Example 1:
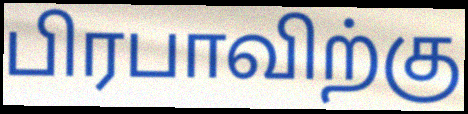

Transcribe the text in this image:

பிரபாவிற்கு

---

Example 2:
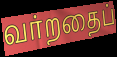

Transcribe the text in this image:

வர்றதைப்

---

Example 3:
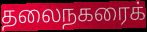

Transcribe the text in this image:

தலைநகரைக்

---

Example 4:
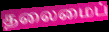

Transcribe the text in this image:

தலைமைப்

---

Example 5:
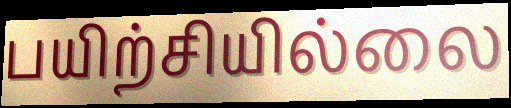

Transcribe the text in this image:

பயிற்சியில்லை